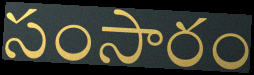
సంసారం